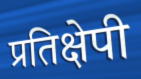
प्रतिक्षेपी